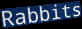
Rabbits